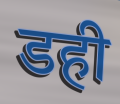
डही